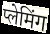
प्लेमिंग